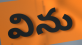
విను